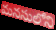
మనసులోని